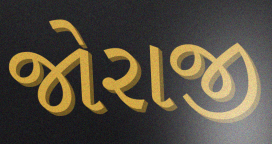
જોરાજી